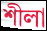
শীলা